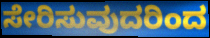
ಸೇರಿಸುವುದರಿಂದ